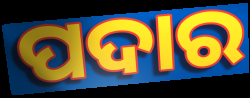
ପଦାର